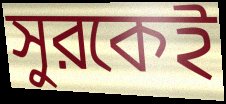
সুরকেই